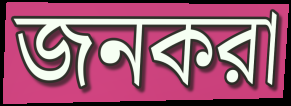
জনকরা